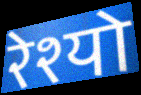
रेश्यो